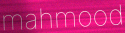
mahmood